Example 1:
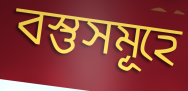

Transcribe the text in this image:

বস্তুসমূহে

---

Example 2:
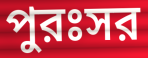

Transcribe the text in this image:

পুরঃসর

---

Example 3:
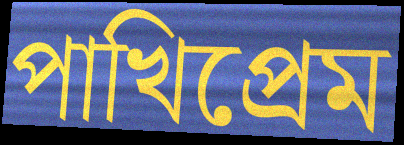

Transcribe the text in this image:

পাখিপ্রেম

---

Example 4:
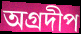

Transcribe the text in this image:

অগ্রদীপ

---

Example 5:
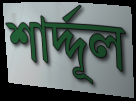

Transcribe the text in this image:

শার্দ্দূল